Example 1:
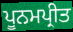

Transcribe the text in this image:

ਪੂਨਮਪ੍ਰੀਤ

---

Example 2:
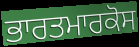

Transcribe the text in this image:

ਭਾਰਤਮਾਰਕੋਸ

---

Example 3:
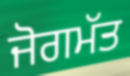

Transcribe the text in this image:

ਜੋਗਮੱਤ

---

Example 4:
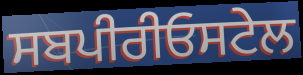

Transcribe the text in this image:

ਸਬਪੀਰੀਓਸਟੇਲ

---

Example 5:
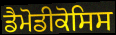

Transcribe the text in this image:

ਡੈਮੋਡੀਕੋਸਿਸ